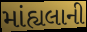
માંહ્યલાની